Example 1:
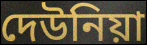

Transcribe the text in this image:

দেউনিয়া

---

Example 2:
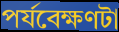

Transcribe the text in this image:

পর্যবেক্ষণটা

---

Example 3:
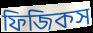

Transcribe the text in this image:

ফিজিকস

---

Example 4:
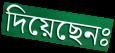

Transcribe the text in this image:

দিয়েছেনঃ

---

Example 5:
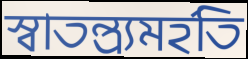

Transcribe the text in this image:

স্বাতন্ত্র্যমর্হতি